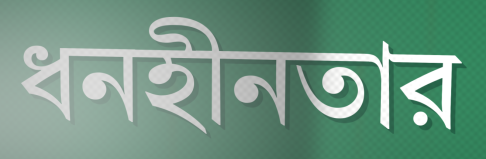
ধনহীনতার